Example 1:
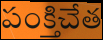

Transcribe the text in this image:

పంక్తిచేత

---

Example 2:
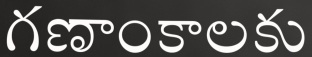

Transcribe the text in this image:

గణాంకాలకు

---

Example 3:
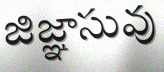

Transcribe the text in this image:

జిజ్ఞాసువు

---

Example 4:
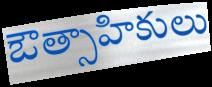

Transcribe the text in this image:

ఔత్సాహికులు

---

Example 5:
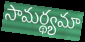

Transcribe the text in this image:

సామర్థ్యమా